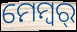
ମେମ୍ବର୍